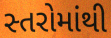
સ્તરોમાંથી